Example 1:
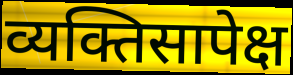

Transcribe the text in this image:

व्यक्तिसापेक्ष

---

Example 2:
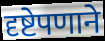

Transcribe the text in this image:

दृष्टेपणाने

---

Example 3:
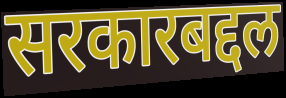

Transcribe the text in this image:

सरकारबद्दल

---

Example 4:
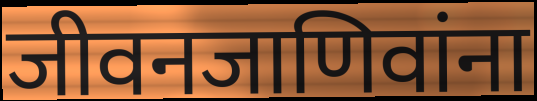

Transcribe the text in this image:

जीवनजाणिवांना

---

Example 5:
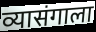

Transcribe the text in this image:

व्यासंगाला